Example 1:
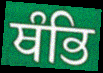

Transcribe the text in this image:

ਥੰਭਿ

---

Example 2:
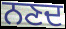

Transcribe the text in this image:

ਨਣਦ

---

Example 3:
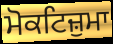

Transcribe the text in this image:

ਮੋਕਟਿਜ਼ੁਮਾ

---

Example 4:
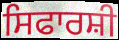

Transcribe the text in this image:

ਸਿਫਾਰਸ਼ੀ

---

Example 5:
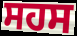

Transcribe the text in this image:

ਸਹਸ